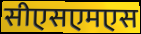
सीएसएमएस